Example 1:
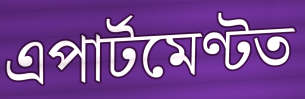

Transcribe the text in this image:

এপাৰ্টমেণ্টত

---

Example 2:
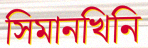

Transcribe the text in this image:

সিমানখিনি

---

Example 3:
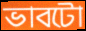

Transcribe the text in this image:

ভাবটো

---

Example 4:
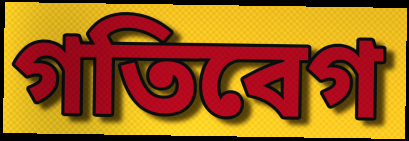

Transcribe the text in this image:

গতিবেগ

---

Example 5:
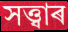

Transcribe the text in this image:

সত্ত্বাৰ